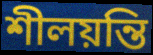
শীলয়ন্তি